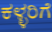
ಕಳ್ಳರಿಗೆ